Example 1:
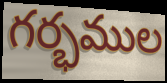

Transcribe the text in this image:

గర్భముల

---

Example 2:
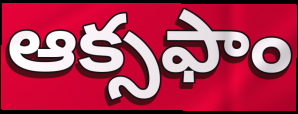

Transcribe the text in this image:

ఆక్సఫాం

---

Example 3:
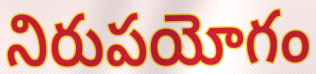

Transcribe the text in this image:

నిరుపయోగం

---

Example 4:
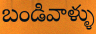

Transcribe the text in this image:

బండివాళ్ళు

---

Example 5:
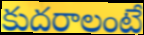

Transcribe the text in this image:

కుదరాలంటే